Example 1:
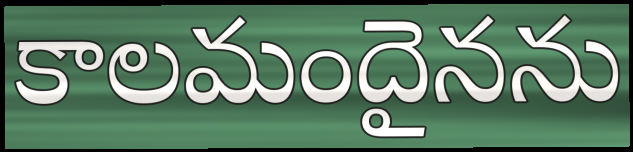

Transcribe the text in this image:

కాలమందైనను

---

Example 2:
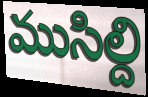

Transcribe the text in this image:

ముసిల్ది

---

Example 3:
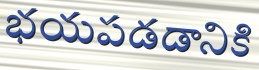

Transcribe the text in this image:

భయపడడానికి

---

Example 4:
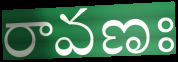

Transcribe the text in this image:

రావణః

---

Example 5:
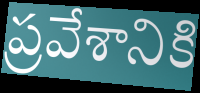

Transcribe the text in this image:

ప్రవేశానికి